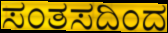
ಸಂತಸದಿಂದ